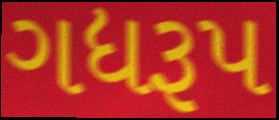
ગદ્યરૂપ